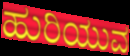
ಹುರಿಯುವ